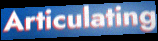
Articulating